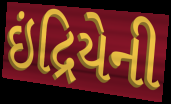
ઇંદ્રિયેની